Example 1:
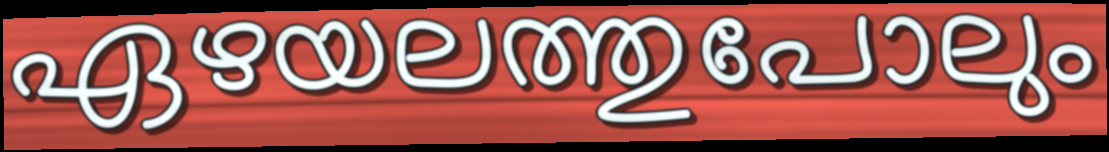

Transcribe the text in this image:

ഏഴയലത്തുപോലും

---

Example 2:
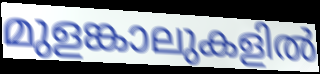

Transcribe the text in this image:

മുളങ്കാലുകളിൽ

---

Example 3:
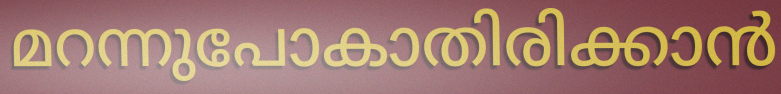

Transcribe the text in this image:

മറന്നുപോകാതിരിക്കാൻ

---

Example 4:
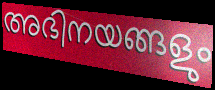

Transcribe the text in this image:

അഭിനയങ്ങളും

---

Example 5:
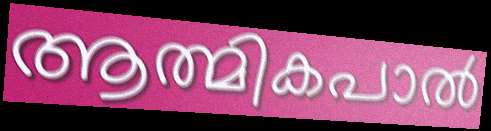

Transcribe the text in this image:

ആത്മികപാൽ